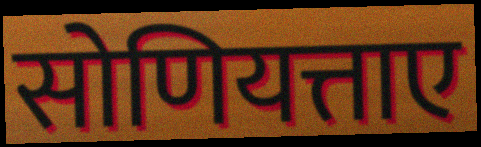
सोणियत्ताए